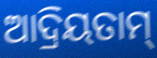
ଆଦ୍ରିୟତାମ୍